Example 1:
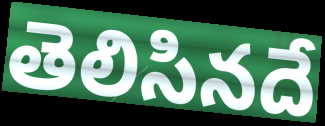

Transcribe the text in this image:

తెలిసినదే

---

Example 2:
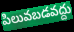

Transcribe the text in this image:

పిలువబడవద్దు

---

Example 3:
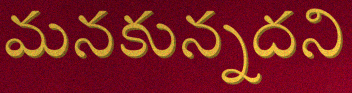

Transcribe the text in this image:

మనకున్నదని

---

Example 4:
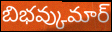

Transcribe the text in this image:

బిభవ్కుమార్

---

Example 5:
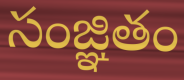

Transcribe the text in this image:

సంజ్ఞితం